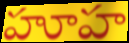
హూహ